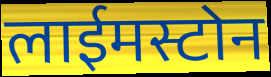
लाईमस्टोन